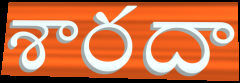
శారదా